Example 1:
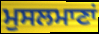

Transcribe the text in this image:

ਮੁਸਲਮਾਣਾਂ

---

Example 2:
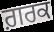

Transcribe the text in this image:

ਗ਼ਰਕ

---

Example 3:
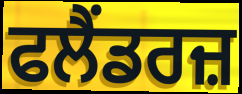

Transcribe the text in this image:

ਫਲੈਂਡਰਜ਼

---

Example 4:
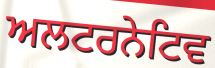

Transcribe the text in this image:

ਅਲਟਰਨੇਟਿਵ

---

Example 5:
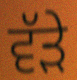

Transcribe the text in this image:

ਵੱਡ਼ੇ